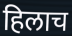
हिलाच